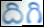
దిగి